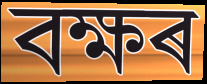
বক্ষৰ